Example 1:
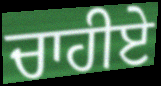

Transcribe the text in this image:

ਚਾਹੀਏ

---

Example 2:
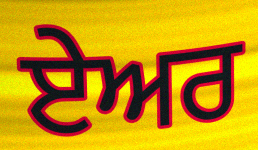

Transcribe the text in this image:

ਏੇਅਰ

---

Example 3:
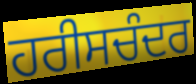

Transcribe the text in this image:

ਹਰੀਸਚੰਦਰ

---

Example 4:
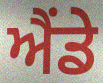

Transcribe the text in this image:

ਐਂਡੇ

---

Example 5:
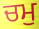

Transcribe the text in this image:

ਚਮੁ